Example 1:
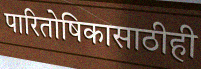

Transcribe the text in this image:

पारितोषिकासाठीही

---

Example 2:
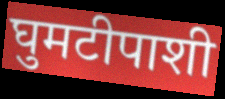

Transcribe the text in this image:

घुमटीपाशी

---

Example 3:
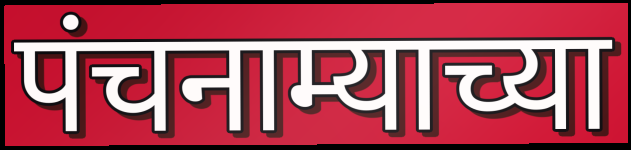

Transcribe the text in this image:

पंचनाम्याच्या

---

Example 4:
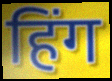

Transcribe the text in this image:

हिंग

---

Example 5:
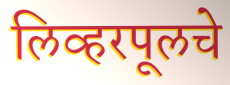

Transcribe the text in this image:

लिव्हरपूलचे